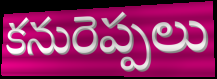
కనురెప్పలు